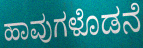
ಹಾವುಗಳೊಡನೆ